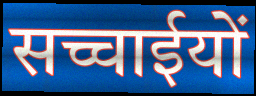
सच्चाईयों